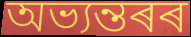
অভ্যন্তৰৰ